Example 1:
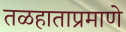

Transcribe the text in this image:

तळहाताप्रमाणे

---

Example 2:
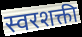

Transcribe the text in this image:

स्वरशक्ती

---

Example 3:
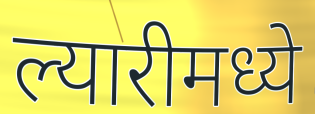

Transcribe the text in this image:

ल्यारीमध्ये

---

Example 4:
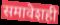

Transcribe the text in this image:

समावेशही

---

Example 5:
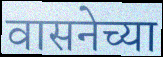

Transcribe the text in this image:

वासनेच्या